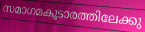
സമാഗമകൂടാരത്തിലേക്കു